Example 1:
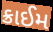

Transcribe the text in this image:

ક્રાઈમ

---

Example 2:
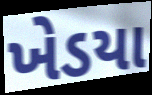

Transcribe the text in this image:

ખેડયા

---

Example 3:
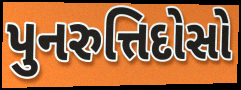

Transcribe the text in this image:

પુનરુત્તિદોસો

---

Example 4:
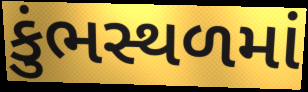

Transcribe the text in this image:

કુંભસ્થળમાં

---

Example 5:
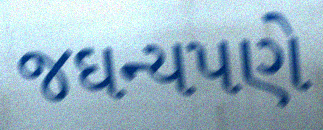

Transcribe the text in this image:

જઘન્યપણે